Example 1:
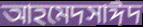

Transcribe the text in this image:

আহমেদসাঈদ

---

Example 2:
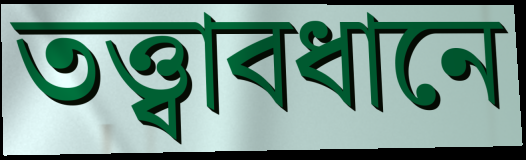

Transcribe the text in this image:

তত্ত্বাবধানে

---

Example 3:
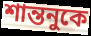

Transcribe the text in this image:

শান্তনুকে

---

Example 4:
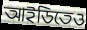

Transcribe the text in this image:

আইডিতেও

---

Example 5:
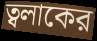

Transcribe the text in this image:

ত্বলাকের